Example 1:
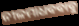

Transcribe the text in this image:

ନୀଳମାଧବବାବୁ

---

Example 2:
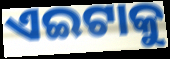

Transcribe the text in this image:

ଏଇଟାକୁ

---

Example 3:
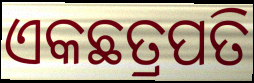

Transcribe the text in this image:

ଏକଛତ୍ରପତି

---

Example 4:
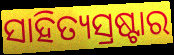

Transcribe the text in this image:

ସାହିତ୍ୟସ୍ରଷ୍ଟାର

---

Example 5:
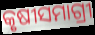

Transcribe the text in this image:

କୃଷୀସମାଗ୍ରୀ